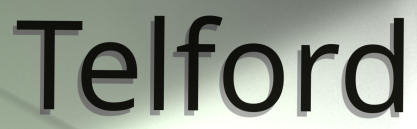
Telford